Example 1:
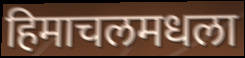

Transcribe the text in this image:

हिमाचलमधला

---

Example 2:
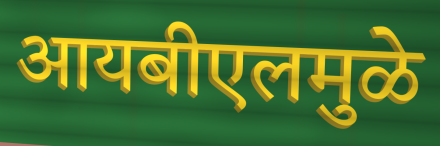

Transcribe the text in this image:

आयबीएलमुळे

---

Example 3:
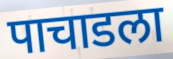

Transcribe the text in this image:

पाचाडला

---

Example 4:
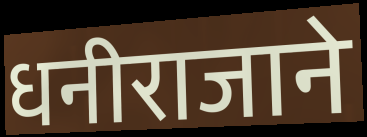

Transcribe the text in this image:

धनीराजाने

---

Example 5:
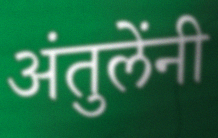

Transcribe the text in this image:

अंतुलेंनी